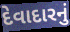
દેવાદારનું